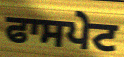
ਫਾਸਪੇਟ